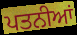
ਪਤਨੀਆਂ